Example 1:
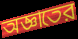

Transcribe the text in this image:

অজ্ঞাতের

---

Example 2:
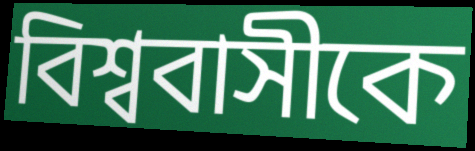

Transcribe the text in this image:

বিশ্ববাসীকে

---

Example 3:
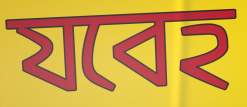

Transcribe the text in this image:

যবেহ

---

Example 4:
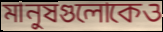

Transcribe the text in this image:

মানুষগুলোকেও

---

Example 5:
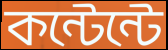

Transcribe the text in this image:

কন্টেন্টে